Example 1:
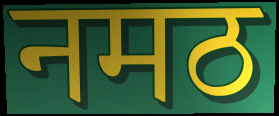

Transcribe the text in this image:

नमठ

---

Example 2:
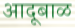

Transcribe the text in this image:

आदूबाळ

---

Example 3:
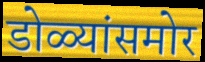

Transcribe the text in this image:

डोळ्यांसमोर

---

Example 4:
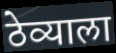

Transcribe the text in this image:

ठेव्याला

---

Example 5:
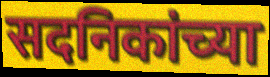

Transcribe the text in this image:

सदनिकांच्या